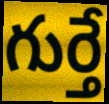
గుర్తే